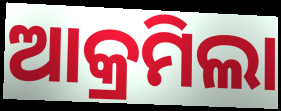
ଆକ୍ରମିଲା